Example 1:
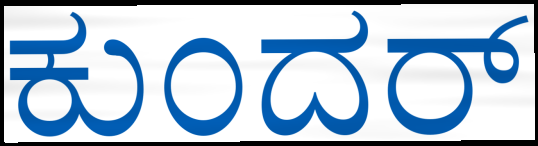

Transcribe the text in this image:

ಕುಂದರ್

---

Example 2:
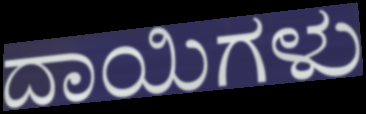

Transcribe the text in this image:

ದಾಯಿಗಳು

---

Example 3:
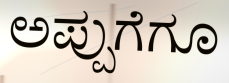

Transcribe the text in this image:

ಅಪ್ಪುಗೆಗೂ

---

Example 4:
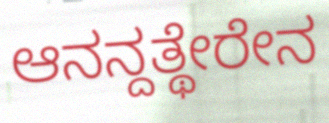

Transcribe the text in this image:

ಆನನ್ದತ್ಥೇರೇನ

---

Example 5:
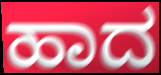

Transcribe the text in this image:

ಹಾದ